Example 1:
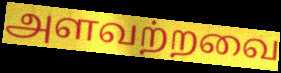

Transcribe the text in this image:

அளவற்றவை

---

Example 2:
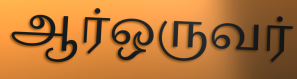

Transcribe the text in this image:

ஆர்ஒருவர்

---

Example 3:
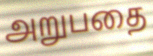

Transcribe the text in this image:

அறுபதை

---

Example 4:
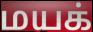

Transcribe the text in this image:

மயக்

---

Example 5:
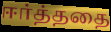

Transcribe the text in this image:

ஈர்த்ததை